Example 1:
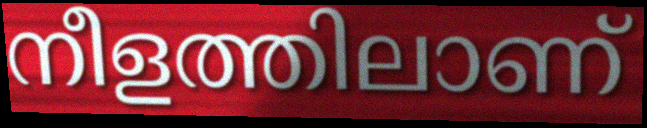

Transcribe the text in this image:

നീളത്തിലാണ്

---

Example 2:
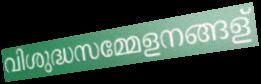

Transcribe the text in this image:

വിശുദ്ധസമ്മേളനങ്ങള്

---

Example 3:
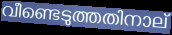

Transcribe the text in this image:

വീണ്ടെടുത്തതിനാല്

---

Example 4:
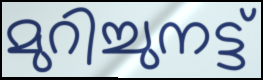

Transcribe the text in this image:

മുറിച്ചുനട്ട്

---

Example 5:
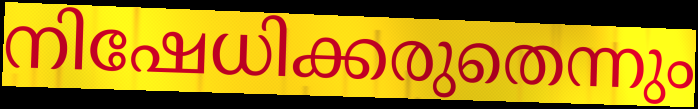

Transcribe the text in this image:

നിഷേധിക്കരുതെന്നും